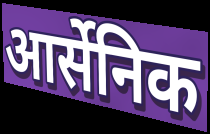
आर्सेनिक